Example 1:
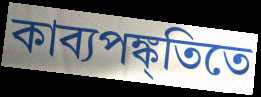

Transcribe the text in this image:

কাব্যপঙ্ক্তিতে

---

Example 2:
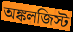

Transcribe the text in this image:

অঙ্কলজিস্ট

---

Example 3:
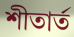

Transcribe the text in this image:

শীতার্ত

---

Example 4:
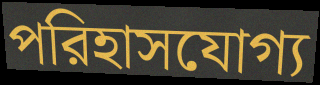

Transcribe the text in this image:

পরিহাসযোগ্য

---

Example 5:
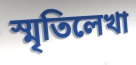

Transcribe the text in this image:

স্মৃতিলেখা